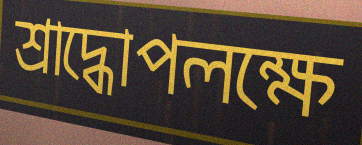
শ্রাদ্ধোপলক্ষে